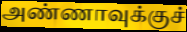
அண்ணாவுக்குச்